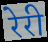
रेरी